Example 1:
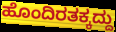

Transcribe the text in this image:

ಹೊಂದಿರತಕ್ಕದ್ದು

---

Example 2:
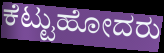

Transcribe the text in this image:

ಕೆಟ್ಟುಹೋದರು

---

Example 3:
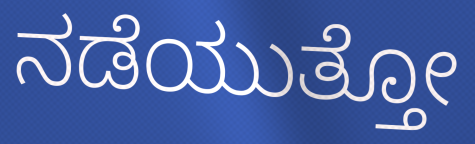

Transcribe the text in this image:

ನಡೆಯುತ್ತೋ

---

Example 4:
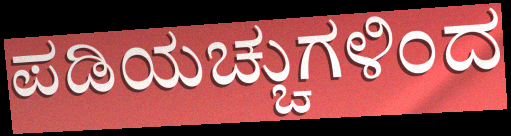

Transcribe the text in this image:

ಪಡಿಯಚ್ಚುಗಳಿಂದ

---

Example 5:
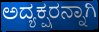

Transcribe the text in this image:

ಅದ್ಯಕ್ಷರನ್ನಾಗಿ